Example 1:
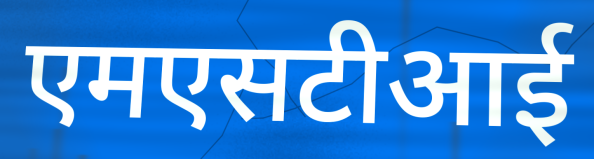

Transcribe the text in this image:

एमएसटीआई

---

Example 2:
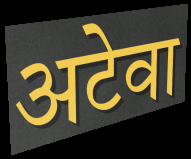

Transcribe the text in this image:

अटेवा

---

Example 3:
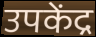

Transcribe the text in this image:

उपकेंद्र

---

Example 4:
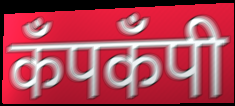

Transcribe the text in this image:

कँपकँपी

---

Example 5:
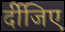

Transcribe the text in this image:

र्दीजिए